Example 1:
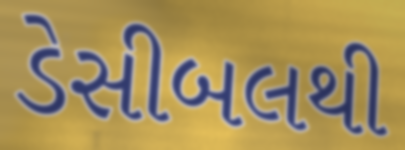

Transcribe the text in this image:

ડેસીબલથી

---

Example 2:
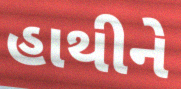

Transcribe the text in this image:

હાથીને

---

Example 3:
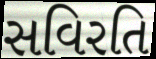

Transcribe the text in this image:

સવિરતિ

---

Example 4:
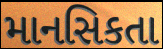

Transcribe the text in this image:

માનસિકતા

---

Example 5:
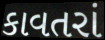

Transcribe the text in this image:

કાવતરાં